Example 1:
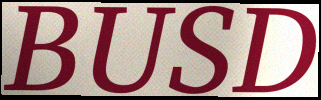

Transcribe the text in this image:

BUSD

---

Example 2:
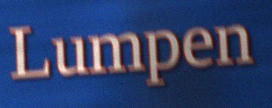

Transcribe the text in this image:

Lumpen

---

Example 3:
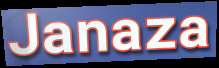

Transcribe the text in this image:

Janaza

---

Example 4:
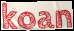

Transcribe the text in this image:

koan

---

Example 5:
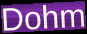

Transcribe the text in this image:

Dohm